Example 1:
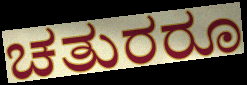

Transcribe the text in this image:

ಚತುರರೂ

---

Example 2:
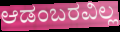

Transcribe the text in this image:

ಆಡಂಬರವಿಲ್ಲ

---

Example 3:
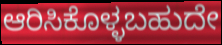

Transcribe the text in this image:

ಆರಿಸಿಕೊಳ್ಳಬಹುದೇ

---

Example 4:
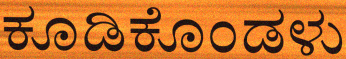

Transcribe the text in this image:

ಕೂಡಿಕೊಂಡಳು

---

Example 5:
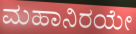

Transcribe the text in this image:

ಮಹಾನಿರಯೇ